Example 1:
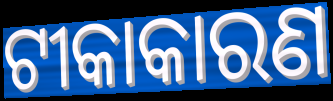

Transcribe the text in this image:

ଟୀକାକାରଣ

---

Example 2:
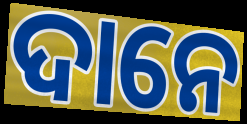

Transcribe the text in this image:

ଦାନେ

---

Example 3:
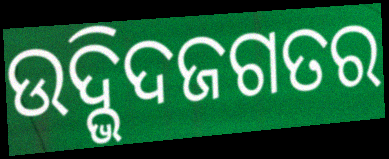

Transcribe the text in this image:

ଉଦ୍ଭିଦଜଗତର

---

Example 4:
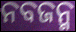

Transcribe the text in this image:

ନବଜନ୍ମ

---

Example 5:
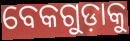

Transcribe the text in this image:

ବେକଗୁଡ଼ାକୁ